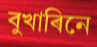
বুখাৰিনে